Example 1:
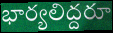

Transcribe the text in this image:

భార్యలిద్దరూ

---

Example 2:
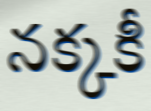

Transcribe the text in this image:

నక్కకీ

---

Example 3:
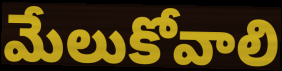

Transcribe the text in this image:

మేలుకోవాలి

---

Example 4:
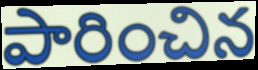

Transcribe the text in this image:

పారించిన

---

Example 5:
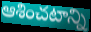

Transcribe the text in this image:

ఆశించటాన్ని